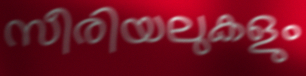
സീരിയലുകളും